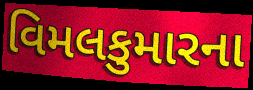
વિમલકુમારના